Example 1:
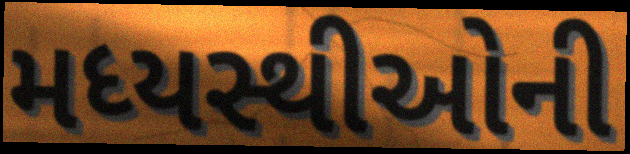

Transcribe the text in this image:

મધ્યસ્થીઓની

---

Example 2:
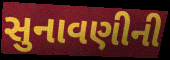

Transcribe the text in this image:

સુનાવણીની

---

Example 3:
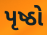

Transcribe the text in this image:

પૃષ્ઠો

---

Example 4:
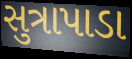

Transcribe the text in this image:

સુત્રાપાડા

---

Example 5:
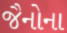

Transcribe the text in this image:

જૈનોના